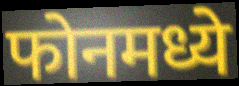
फोनमध्ये